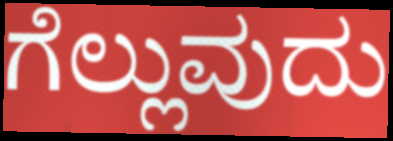
ಗೆಲ್ಲುವುದು